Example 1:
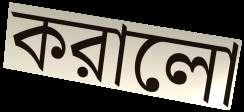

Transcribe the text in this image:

করালো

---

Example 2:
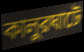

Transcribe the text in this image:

কালুরঘাটে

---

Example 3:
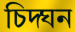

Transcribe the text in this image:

চিদ্ঘন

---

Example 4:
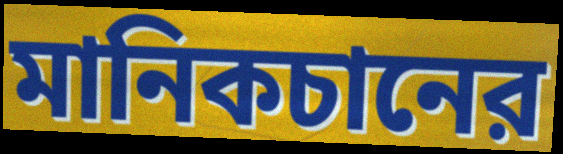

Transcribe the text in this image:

মানিকচানের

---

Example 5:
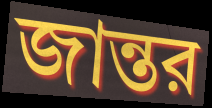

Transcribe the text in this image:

জান্তর